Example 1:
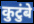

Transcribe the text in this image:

कुटुंबे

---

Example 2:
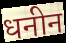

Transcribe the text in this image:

धनीन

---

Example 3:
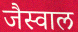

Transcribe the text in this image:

जैस्वाल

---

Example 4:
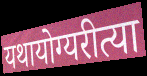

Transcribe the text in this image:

यथायोग्यरीत्या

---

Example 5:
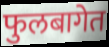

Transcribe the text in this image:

फुलबागेत